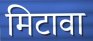
मिटावा